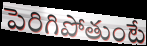
పెరిగిపోతుంటే